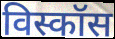
विस्कॉस